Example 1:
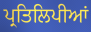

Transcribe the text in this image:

ਪ੍ਰਤਿਲਿਪੀਆਂ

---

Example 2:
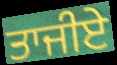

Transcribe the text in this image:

ਤਾਜੀਏ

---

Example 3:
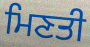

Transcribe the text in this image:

ਮਿਣਤੀ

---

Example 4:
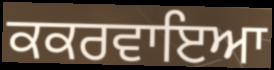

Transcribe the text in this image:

ਕਕਰਵਾਇਆ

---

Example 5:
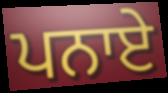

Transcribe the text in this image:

ਪਨਾਏ